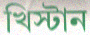
খিস্টান